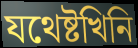
যথেষ্টখিনি